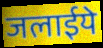
जलाईये